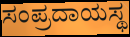
ಸಂಪ್ರದಾಯಸ್ಥ